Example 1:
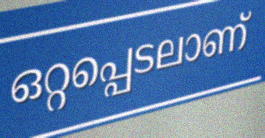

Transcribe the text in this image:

ഒറ്റപ്പെടലാണ്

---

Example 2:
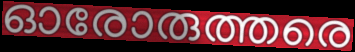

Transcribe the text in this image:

ഓരോരുത്തരെ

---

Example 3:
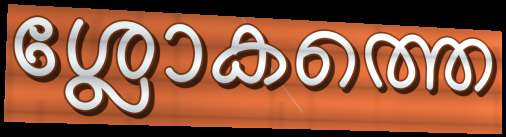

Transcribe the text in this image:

ശ്ലോകത്തെ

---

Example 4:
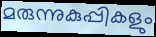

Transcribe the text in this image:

മരുന്നുകുപ്പികളും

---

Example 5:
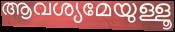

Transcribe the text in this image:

ആവശ്യമേയുള്ളൂ